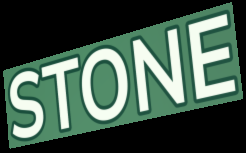
STONE